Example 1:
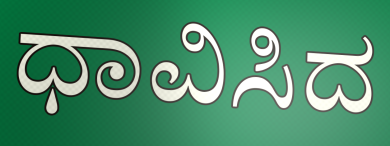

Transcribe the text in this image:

ಧಾವಿಸಿದ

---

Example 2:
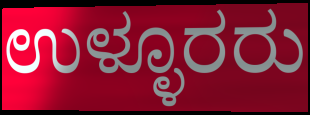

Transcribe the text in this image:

ಉಳ್ಳೂರರು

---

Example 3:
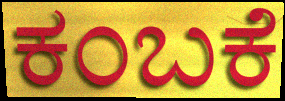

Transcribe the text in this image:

ಕಂಬಕೆ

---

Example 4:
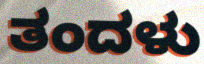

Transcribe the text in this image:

ತಂದಳು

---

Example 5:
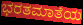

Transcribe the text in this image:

ಭರತಮಾತೆಯ